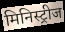
मिनिस्ट्रीज